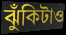
ঝুঁকিটাও